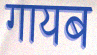
गायब